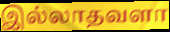
இல்லாதவளா